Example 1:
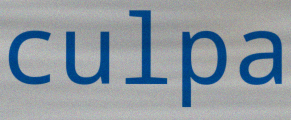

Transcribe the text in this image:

culpa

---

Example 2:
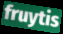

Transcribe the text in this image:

fruytis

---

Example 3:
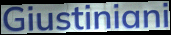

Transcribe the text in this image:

Giustiniani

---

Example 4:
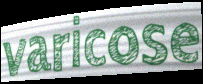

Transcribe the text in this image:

varicose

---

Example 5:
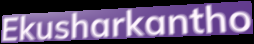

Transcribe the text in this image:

Ekusharkantho